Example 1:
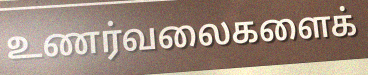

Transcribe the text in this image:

உணர்வலைகளைக்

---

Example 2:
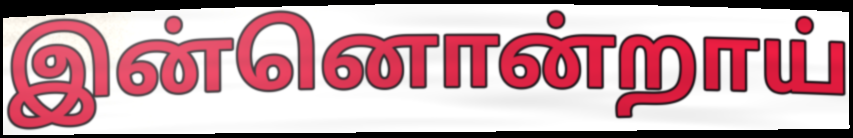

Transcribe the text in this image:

இன்னொன்றாய்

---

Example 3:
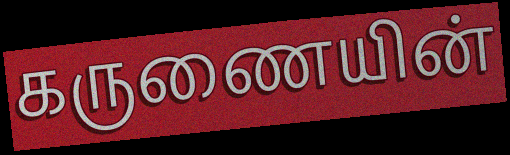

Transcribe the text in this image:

கருணையின்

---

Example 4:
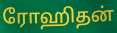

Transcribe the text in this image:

ரோஹிதன்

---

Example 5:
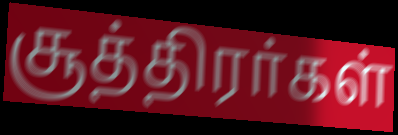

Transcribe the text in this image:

சூத்திரர்கள்